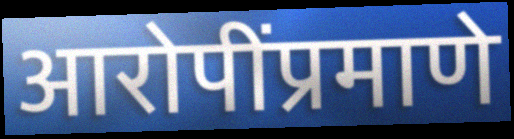
आरोपींप्रमाणे